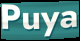
Puya